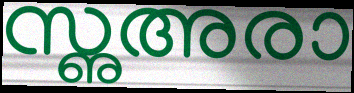
സൢഅരാ